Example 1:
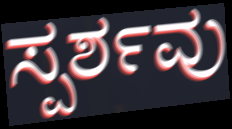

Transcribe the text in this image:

ಸ್ಪರ್ಶವು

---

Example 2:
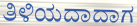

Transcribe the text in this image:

ತಿಳಿಯದಾದಾಗ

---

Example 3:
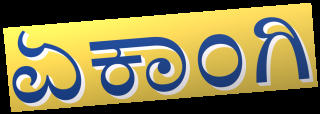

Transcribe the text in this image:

ಏಕಾಂಗಿ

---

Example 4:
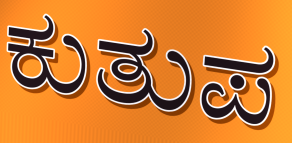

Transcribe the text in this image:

ಕುತುಪ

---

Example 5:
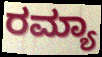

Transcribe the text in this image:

ರಮ್ಯಾ